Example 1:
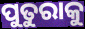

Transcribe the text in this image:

ପୁତୁରାକୁ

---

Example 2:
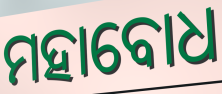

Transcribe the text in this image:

ମହାବୋଧ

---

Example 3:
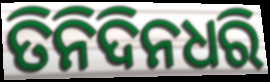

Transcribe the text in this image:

ତିନିଦିନଧରି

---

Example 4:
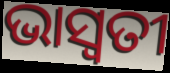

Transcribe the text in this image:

ଭାସ୍ବତୀ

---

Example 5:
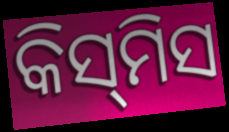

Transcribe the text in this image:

କିସ୍‌ମିସ